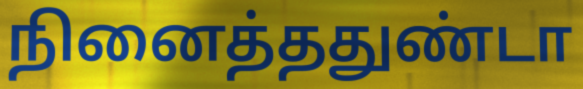
நினைத்ததுண்டா